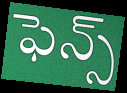
ఫెన్స్